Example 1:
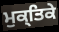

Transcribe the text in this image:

ਮੁਕ੍ਤਿਕੇ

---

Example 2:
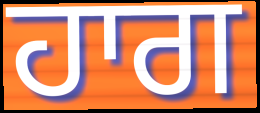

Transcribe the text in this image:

ਹਾਗ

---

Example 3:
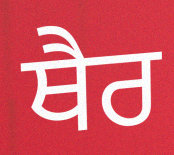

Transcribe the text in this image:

ਥੈਰ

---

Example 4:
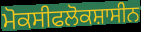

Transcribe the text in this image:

ਮੋਕਸੀਫਲੋਕਸ਼ਾਸੀਨ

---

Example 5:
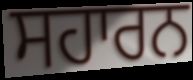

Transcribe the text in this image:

ਸਹਾਰਨ